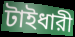
টাইধারী